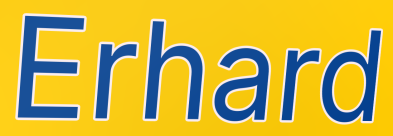
Erhard